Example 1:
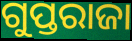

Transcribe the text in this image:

ଗୁପ୍ତରାଜା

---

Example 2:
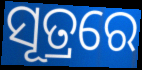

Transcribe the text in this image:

ସୂତ୍ରରେ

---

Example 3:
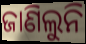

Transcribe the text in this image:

ଜାଣିଲୁନି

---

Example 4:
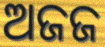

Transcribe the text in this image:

ଅଜଜ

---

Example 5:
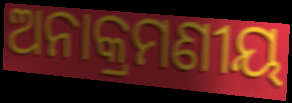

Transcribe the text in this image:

ଅନାକ୍ରମଣୀୟ